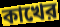
কাখের